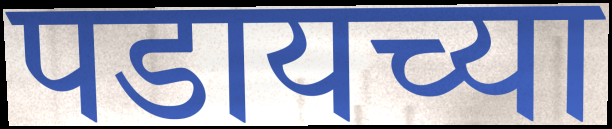
पडायच्या